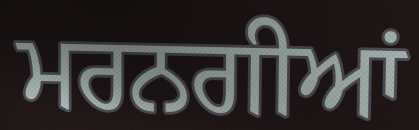
ਮਰਨਗੀਆਂ